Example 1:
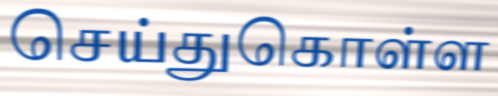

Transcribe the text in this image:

செய்துகொள்ள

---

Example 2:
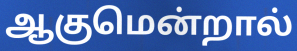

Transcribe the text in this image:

ஆகுமென்றால்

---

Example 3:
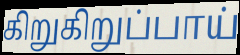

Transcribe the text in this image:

கிறுகிறுப்பாய்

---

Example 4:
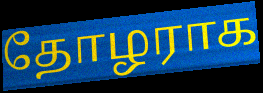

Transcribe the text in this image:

தோழராக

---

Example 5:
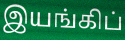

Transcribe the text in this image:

இயங்கிப்